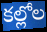
కల్లోల